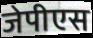
जेपीएस